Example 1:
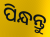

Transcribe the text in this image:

ପିନ୍ଧନ୍ତୁ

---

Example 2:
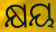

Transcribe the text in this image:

କ୍ଷୟ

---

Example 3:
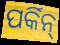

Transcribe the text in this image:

ପର୍କିନ୍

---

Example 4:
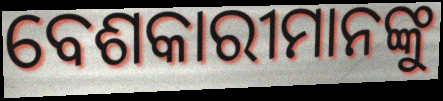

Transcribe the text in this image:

ବେଶକାରୀମାନଙ୍କୁ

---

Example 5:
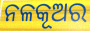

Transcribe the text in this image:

ନଳକୂଅର